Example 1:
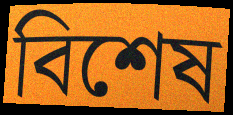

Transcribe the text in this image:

বিশেষ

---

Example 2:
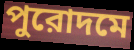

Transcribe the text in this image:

পুরোদমে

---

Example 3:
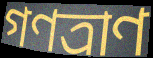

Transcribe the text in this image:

গণত্রাণ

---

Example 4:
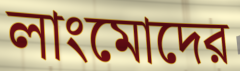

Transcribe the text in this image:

লাংমোদের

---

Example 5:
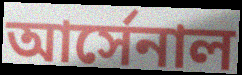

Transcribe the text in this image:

আর্সেনাল